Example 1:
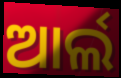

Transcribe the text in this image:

ଆର୍ଲ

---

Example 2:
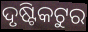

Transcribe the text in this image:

ଦୃଷ୍ଟିକଟୁର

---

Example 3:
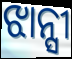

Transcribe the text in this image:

ଝାନ୍ସୀ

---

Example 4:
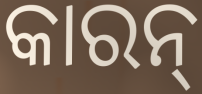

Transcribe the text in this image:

କାରନ୍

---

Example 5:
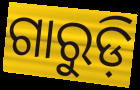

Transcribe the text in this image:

ଗାରୁଡ଼ି